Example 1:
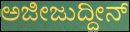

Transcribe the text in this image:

ಅಜೀಜುದ್ದೀನ್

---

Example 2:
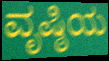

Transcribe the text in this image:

ವೃಷ್ಠಿಯ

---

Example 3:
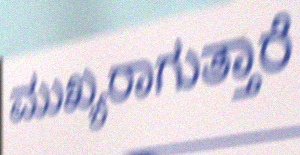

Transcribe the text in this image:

ಮುಖ್ಯರಾಗುತ್ತಾರೆ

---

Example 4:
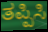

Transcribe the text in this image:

ತಪ್ಪಿಸಿ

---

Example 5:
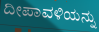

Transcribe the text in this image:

ದೀಪಾವಳಿಯನ್ನು